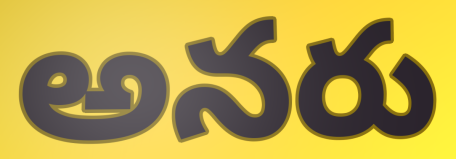
అనరు